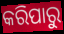
କରିପାରୁ